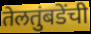
तेलतुंबडेंची